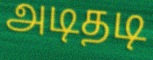
அடிதடி